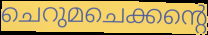
ചെറുമചെക്കന്റെ